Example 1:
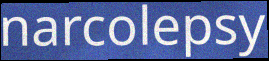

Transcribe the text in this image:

narcolepsy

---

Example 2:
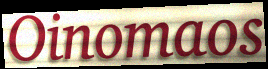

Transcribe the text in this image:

Oinomaos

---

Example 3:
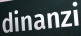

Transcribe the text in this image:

dinanzi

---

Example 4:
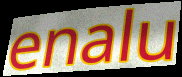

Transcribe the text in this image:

enalu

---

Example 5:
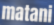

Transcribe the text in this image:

matani